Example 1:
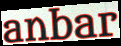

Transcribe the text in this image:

anbar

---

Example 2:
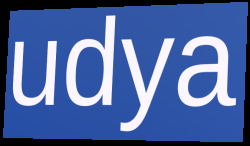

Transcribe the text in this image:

udya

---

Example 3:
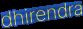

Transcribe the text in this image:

dhirendra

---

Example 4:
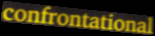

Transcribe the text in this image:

confrontational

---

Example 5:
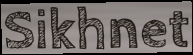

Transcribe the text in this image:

Sikhnet